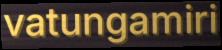
vatungamiri